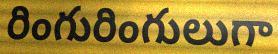
రింగురింగులుగా